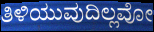
ತಿಳಿಯುವುದಿಲ್ಲವೋ